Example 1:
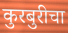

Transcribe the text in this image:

कुरबुरीचा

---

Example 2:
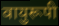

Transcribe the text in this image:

वायुरूपी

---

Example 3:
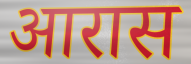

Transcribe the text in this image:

आरास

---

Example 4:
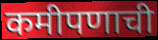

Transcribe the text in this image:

कमीपणाची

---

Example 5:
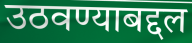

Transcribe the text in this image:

उठवण्याबद्दल